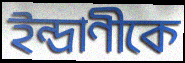
ইন্দ্রাণীকে